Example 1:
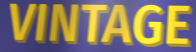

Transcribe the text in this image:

VINTAGE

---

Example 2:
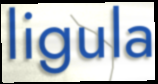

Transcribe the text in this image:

ligula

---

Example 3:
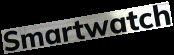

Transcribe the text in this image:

Smartwatch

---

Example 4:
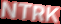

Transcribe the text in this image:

NTRK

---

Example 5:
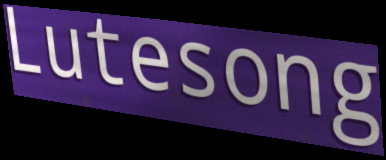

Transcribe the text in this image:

Lutesong